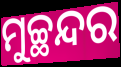
ମୁଚ୍ଛନ୍ଦର